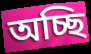
অচ্ছি